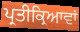
ਪ੍ਰਤੀਕ੍ਰਿਆਵਾਂ